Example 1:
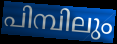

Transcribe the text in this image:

പിമ്പിലും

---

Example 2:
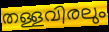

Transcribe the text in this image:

തള്ളവിരലും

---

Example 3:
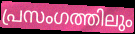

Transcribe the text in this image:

പ്രസംഗത്തിലും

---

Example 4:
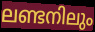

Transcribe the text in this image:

ലണ്ടനിലും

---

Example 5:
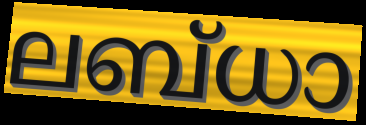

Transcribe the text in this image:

ലബ്ധാ